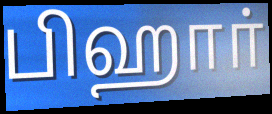
பிஹார்